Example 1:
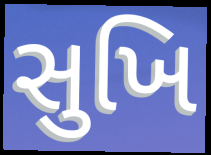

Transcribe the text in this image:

સુખિ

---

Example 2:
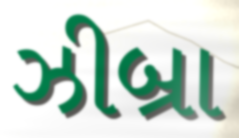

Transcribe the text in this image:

ઝીબ્રા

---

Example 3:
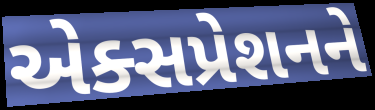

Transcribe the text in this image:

એક્સપ્રેશનને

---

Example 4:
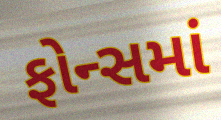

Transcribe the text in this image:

ફોન્સમાં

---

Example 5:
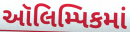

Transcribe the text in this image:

ઑલિમ્પિકમાં